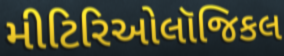
મીટિરિઓલૉજિકલ